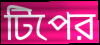
টিপের